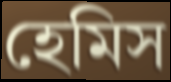
হেমিস